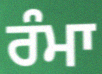
ਰੰਮਾ